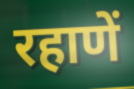
रहाणें